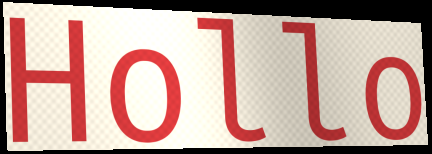
Hollo